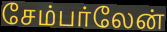
சேம்பர்லேன்